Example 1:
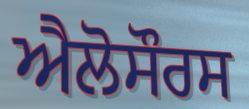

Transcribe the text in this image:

ਐਲੋਸੌਰਸ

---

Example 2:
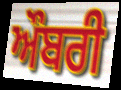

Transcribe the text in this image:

ਔਬਰੀ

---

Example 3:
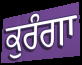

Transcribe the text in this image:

ਕੁਰੰਗਾ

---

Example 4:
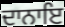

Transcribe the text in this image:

ਦਾਨਾਇ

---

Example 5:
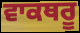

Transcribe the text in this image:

ਵਾਕਥਰੂ